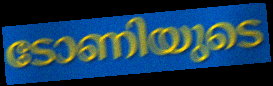
ടോണിയുടെ